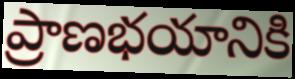
ప్రాణభయానికి